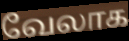
வேலாக